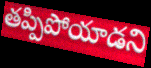
తప్పిపోయాడని